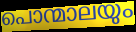
പൊന്മാലയും